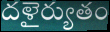
దళైర్యుతం